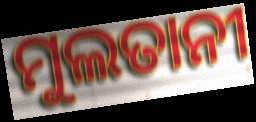
ମୁଲତାନୀ